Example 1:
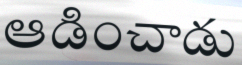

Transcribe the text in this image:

ఆడించాడు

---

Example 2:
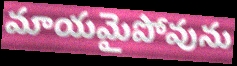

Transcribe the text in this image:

మాయమైపోవును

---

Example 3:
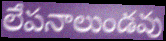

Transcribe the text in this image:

లేపనాలుండవు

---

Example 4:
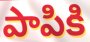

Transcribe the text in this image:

పాపికి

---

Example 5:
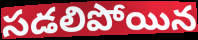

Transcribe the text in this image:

సడలిపోయిన